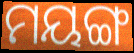
ମୟଙ୍ଗ